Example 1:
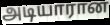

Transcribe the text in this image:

அடியாரான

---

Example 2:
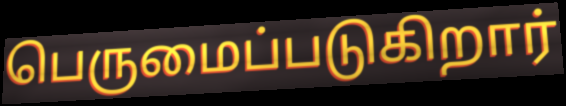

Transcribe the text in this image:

பெருமைப்படுகிறார்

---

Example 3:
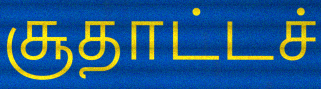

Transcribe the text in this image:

சூதாட்டச்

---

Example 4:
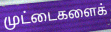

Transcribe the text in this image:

முட்டைகளைக்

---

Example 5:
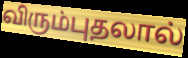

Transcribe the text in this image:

விரும்புதலால்